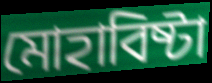
মোহাবিষ্টা